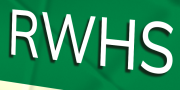
RWHS